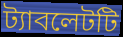
ট্যাবলেটটি